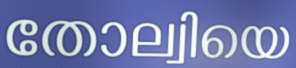
തോല്വിയെ